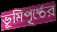
ভূমিপৃষ্ঠের